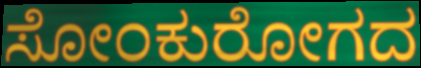
ಸೋಂಕುರೋಗದ